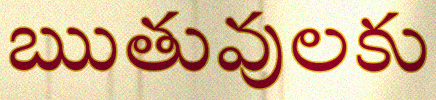
ఋతువులకు